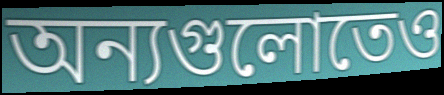
অন্যগুলোতেও